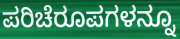
ಪರಿಚೆರೂಪಗಳನ್ನೂ